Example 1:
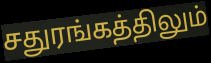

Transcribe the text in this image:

சதுரங்கத்திலும்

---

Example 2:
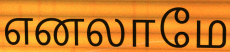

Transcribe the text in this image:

எனலாமே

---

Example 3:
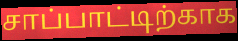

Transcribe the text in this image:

சாப்பாட்டிற்காக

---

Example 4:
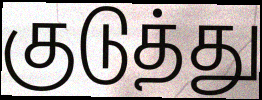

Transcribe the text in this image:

குடுத்து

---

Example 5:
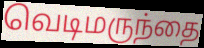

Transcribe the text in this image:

வெடிமருந்தை